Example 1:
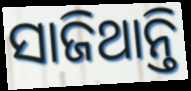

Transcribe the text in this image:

ସାଜିଥାନ୍ତି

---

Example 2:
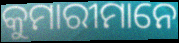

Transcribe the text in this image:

କୁମାରୀମାନେ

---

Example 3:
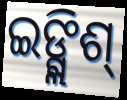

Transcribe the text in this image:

ଇଙ୍ଗ୍ଲିଶ୍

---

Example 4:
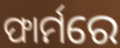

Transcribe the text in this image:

ଫାର୍ମରେ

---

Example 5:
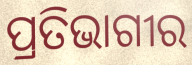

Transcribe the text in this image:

ପ୍ରତିଭାଗୀର